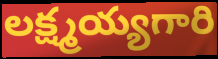
లక్ష్మయ్యగారి